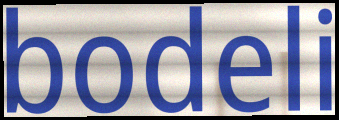
bodeli